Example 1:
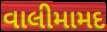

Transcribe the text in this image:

વાલીમામદ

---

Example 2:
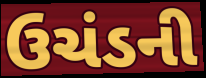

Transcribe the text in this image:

ઉચંડની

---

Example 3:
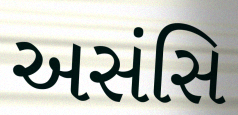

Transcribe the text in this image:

અસંસિ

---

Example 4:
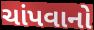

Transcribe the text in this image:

ચાંપવાનો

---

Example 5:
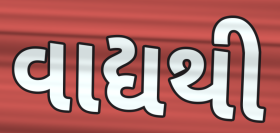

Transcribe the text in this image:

વાદ્યથી